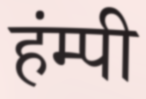
हंम्पी